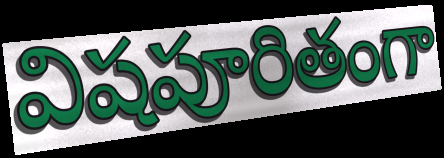
విషపూరితంగా